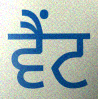
ਵੈਂਟ